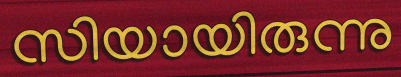
സിയായിരുന്നു